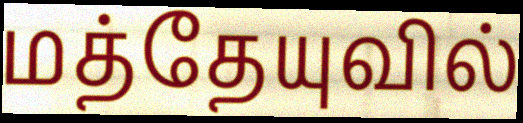
மத்தேயுவில்